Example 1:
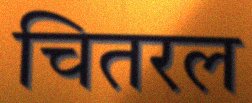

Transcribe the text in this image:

चितरल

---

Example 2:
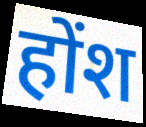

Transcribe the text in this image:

होंश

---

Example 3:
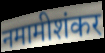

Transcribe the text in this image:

नमामीशंकर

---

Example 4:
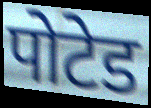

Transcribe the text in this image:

पोटेड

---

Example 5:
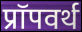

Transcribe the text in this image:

प्रॉपवर्थ